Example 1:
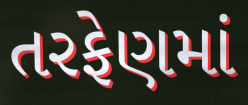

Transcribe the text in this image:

તરફેણમાં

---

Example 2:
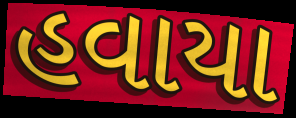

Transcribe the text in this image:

હવાયા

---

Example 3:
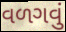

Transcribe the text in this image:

વળગવું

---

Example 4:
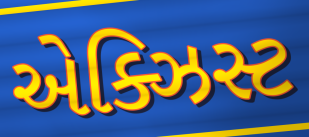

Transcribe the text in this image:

એક્ઝિસ્ટ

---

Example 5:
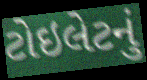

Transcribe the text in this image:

ટોઇલેટનું